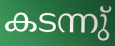
കടന്നു്